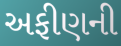
અફીણની